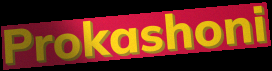
Prokashoni